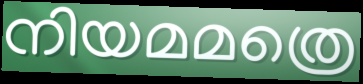
നിയമമത്രെ